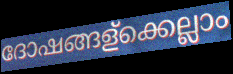
ദോഷങ്ങള്ക്കെല്ലാം